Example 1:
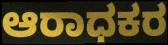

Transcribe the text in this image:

ಆರಾಧಕರ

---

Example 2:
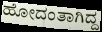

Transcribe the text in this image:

ಹೋದಂತಾಗಿದ್ದ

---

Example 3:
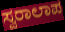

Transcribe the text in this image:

ಸ್ವರಾಲಾಪ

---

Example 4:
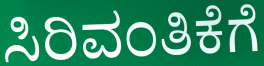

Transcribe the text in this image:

ಸಿರಿವಂತಿಕೆಗೆ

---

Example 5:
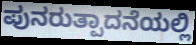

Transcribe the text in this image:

ಪುನರುತ್ಪಾದನೆಯಲ್ಲಿ